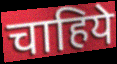
चाहिये